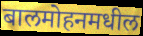
बालमोहनमधील